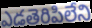
ఎడతెరిపిలేని